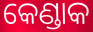
କେଣ୍ଡାକ